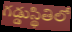
గడ్డుస్థితిలో